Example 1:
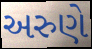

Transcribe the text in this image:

અરુણે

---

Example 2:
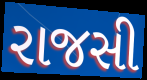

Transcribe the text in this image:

રાજસી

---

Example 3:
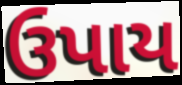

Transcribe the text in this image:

ઉપાય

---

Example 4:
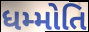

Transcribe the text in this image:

ધમ્મોતિ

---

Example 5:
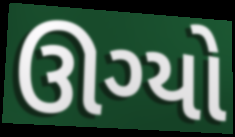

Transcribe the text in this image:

ઊગ્યો